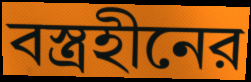
বস্ত্রহীনের